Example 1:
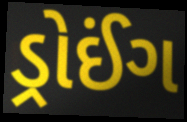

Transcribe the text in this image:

ડ્રોઈંગ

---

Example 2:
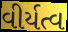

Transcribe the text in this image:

વીર્યત્વ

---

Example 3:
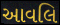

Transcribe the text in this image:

આવલિ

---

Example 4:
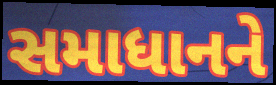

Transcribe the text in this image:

સમાધાનને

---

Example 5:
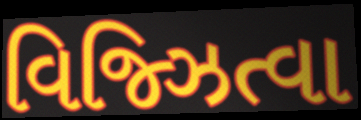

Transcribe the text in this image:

વિજ્ઝિત્વા